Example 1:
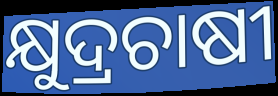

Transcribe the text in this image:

କ୍ଷୁଦ୍ରଚାଷୀ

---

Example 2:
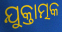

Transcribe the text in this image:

ଯୁକ୍ତାତ୍ମକ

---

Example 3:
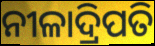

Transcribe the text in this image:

ନୀଳାଦ୍ରିପତି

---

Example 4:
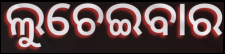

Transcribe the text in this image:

ଲୁଚେଇବାର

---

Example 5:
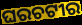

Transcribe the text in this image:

ଘରଚଟୀର